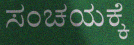
ಸಂಚಯಕ್ಕೆ